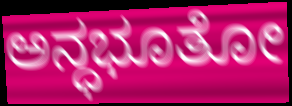
ಅನ್ಧಭೂತೋ